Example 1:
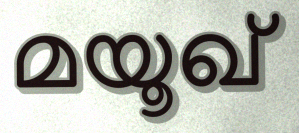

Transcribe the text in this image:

മയൂഖ്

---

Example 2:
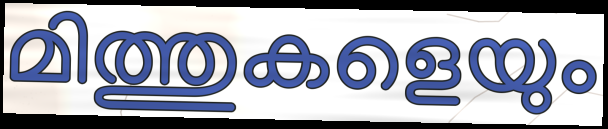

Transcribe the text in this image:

മിത്തുകളെയും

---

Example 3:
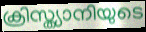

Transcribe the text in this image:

ക്രിസ്ത്യാനിയുടെ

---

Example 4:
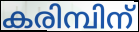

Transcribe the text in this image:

കരിമ്പിന്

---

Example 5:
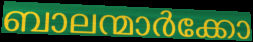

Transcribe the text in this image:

ബാലന്മാർക്കോ